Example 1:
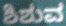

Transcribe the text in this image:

ಶಿಶುವ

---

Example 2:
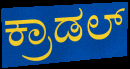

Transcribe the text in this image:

ಕ್ರಾಡಲ್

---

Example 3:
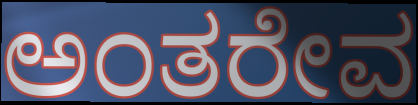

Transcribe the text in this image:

ಅಂತರೇವ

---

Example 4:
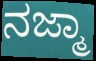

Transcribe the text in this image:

ನಜ್ಮಾ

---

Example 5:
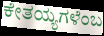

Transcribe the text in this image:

ಕೇತಯ್ಯಗಳೆಂಬ